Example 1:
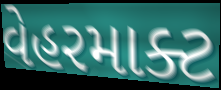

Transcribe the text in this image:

વેહરમાક્ટ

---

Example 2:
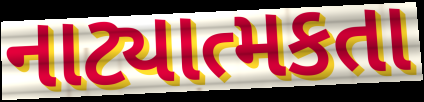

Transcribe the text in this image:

નાટ્યાત્મકતા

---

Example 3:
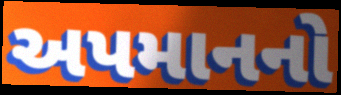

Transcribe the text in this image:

અપમાનનો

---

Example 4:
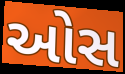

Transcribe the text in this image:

ઓસ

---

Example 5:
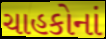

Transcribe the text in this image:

ચાહકોનાં